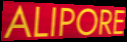
ALIPORE